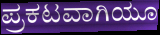
ಪ್ರಕಟವಾಗಿಯೂ